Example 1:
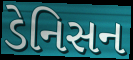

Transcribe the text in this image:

ડેનિસન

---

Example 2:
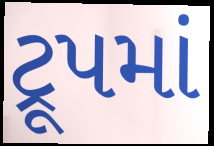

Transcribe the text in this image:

ટ્રૂપમાં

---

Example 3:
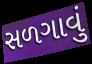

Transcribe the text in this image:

સળગાવું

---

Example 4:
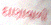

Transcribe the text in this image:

દાણાવાળો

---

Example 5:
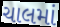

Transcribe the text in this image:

ચાલમાં